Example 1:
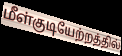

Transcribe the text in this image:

மீள்குடியேற்றத்தில்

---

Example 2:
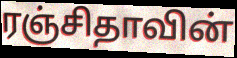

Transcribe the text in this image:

ரஞ்சிதாவின்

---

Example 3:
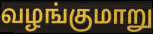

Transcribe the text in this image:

வழங்குமாறு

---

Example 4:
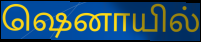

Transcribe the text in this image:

ஷெனாயில்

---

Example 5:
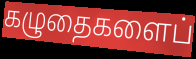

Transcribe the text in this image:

கழுதைகளைப்